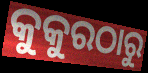
କୁକୁରଠାରୁ